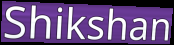
Shikshan